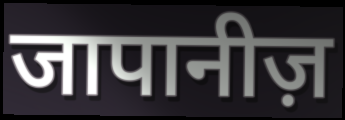
जापानीज़